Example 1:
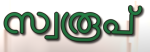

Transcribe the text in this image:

സ്വരൂപ്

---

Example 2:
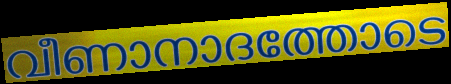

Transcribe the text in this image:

വീണാനാദത്തോടെ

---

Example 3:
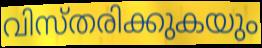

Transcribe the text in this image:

വിസ്തരിക്കുകയും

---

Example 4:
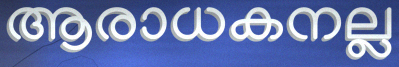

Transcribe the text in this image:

ആരാധകനല്ല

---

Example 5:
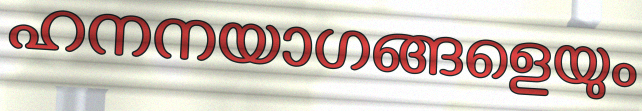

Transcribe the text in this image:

ഹനനയാഗങ്ങളെയും